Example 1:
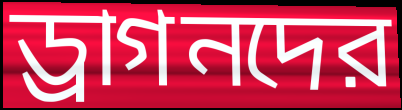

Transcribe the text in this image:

ড্রাগনদের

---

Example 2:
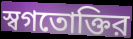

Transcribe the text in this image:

স্বগতোক্তির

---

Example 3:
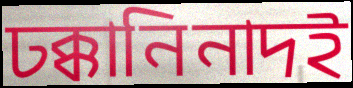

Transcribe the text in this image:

ঢক্কানিনাদই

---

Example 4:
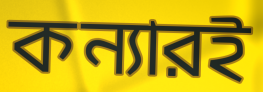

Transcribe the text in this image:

কন্যারই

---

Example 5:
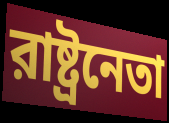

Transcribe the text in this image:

রাষ্ট্রনেতা